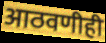
आठवणीही